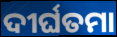
ଦୀର୍ଘତମା